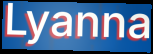
Lyanna